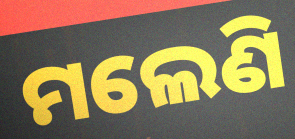
ମଲେଣି